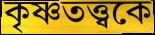
কৃষ্ণতত্ত্বকে